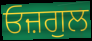
ਓਜ਼ਗੁਲ